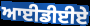
ਆਈਡੀਈਏ